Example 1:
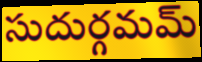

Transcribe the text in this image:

సుదుర్గమమ్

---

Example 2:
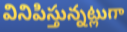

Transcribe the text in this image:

వినిపిస్తున్నట్లుగా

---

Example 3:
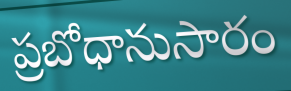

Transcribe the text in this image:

ప్రబోధానుసారం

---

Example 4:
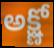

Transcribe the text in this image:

అక్ష్ణో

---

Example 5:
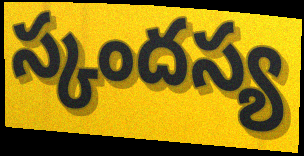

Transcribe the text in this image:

స్కందస్య